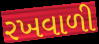
રખવાળી